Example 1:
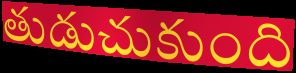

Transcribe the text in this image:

తుడుచుకుంది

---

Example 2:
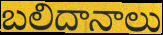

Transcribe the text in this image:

బలిదానాలు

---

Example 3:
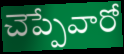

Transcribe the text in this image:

చెప్పేవారో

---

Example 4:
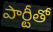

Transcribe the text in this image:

పార్టీతో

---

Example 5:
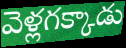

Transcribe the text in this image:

వెళ్లగక్కాడు